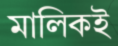
মালিকই